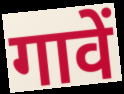
गावें